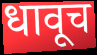
धावूच